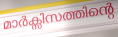
മാർക്സിസത്തിന്റെ